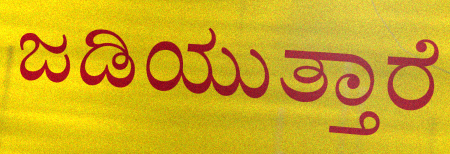
ಜಡಿಯುತ್ತಾರೆ